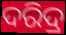
ଦରିଦ୍ର